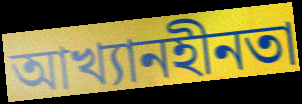
আখ্যানহীনতা